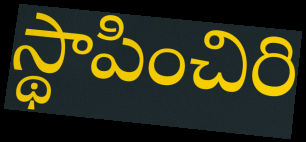
స్థాపించిరి